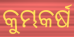
କୁମ୍ଭକର୍ଷ